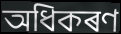
অধিকৰণ